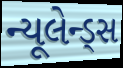
ન્યૂલેન્ડ્સ